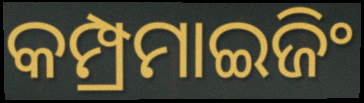
କମ୍ପ୍ରମାଇଜିଂ